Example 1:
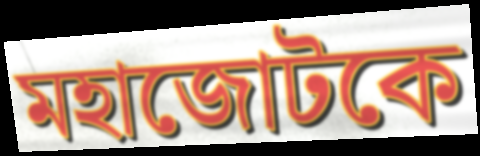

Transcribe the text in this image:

মহাজোটকে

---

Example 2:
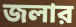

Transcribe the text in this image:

জলার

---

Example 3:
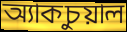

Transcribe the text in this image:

অ্যাকচুয়াল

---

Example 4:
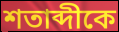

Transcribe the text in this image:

শতাব্দীকে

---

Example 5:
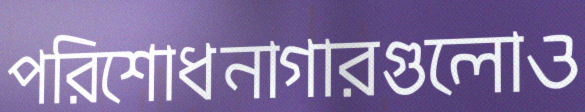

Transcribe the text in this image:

পরিশোধনাগারগুলোও